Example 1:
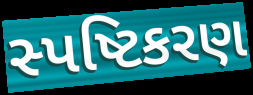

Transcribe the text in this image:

સ્પષ્ટિકરણ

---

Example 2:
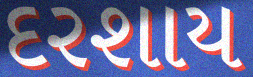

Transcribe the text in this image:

દરશાય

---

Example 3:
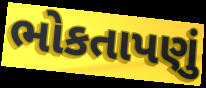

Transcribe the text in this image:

ભોકતાપણું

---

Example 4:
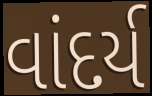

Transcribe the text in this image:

વાંદર્ય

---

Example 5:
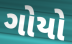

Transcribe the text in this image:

ગોયો